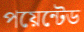
পয়েন্টেড